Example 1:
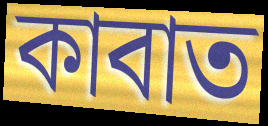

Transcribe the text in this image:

কাবাত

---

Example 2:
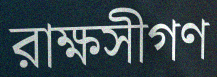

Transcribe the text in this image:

রাক্ষসীগণ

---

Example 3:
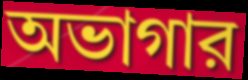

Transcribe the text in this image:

অভাগার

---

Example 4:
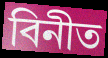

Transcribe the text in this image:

বিনীত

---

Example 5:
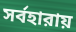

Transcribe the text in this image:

সর্বহারায়